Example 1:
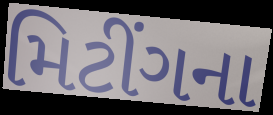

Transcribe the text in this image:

મિટીંગના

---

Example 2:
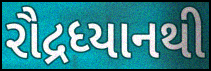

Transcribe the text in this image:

રૌદ્રધ્યાનથી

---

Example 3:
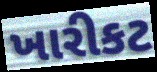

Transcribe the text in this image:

ખારીકટ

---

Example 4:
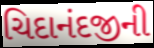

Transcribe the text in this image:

ચિદાનંદજીની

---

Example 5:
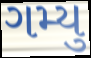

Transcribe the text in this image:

ગમ્યુ